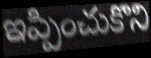
ఇప్పించుకొని